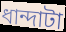
ধান্দাটা